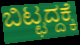
ಬಿಟ್ಟದ್ದಕ್ಕೆ